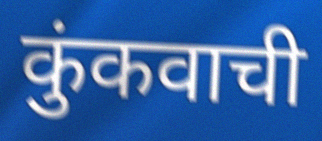
कुंकवाची